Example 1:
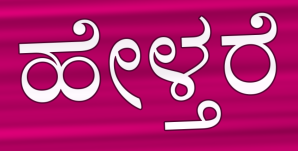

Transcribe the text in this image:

ಹೇಳ್ತರೆ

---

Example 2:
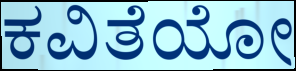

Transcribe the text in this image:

ಕವಿತೆಯೋ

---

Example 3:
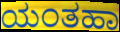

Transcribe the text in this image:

ಯಂತಹಾ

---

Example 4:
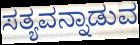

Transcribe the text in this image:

ಸತ್ಯವನ್ನಾಡುವ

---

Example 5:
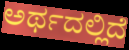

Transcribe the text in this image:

ಅರ್ಥದಲ್ಲಿದೆ